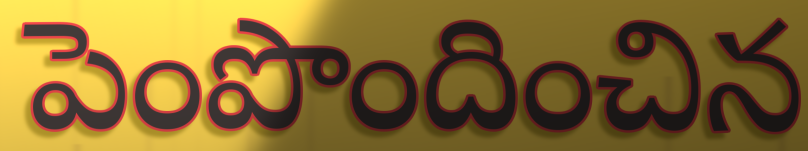
పెంపొందించిన